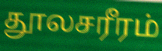
தூலசரீரம்